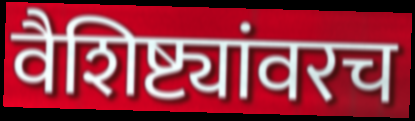
वैशिष्ट्यांवरच